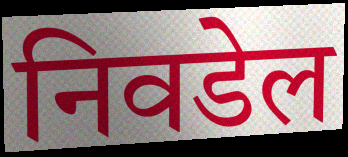
निवडेल